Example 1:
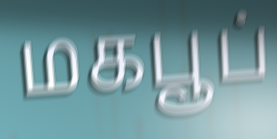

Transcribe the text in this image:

மகபூப்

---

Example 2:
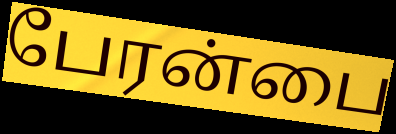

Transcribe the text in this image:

பேரன்பை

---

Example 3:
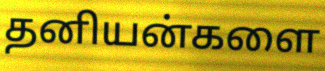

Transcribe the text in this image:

தனியன்களை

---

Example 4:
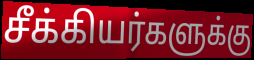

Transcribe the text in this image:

சீக்கியர்களுக்கு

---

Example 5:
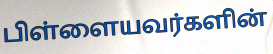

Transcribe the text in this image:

பிள்ளையவர்களின்